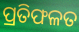
ପ୍ରତିଫଳତ